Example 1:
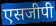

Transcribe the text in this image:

एसजीपी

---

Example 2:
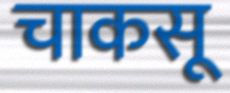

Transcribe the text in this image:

चाकसू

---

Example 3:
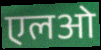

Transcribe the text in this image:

एलओ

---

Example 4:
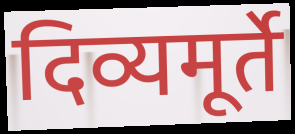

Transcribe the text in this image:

दिव्यमूर्ते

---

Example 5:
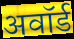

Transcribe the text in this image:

अवॉर्ड